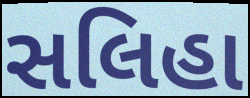
સલિહા